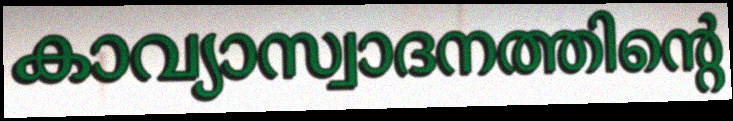
കാവ്യാസ്വാദനത്തിന്റെ